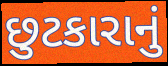
છુટકારાનું